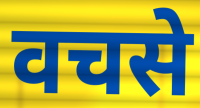
वचसे